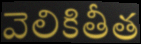
వెలికితీత